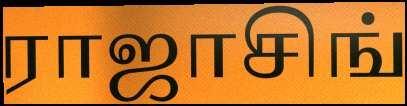
ராஜாசிங்